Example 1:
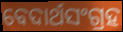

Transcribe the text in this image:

ବେଦାର୍ଥସଂଗ୍ରହ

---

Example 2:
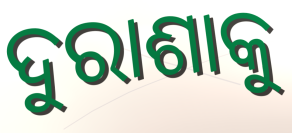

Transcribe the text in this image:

ଦୁରାଶାକୁ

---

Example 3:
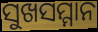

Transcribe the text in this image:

ସୁଖସମ୍ମାନ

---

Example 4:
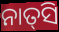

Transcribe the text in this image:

ନାତ୍‌ସି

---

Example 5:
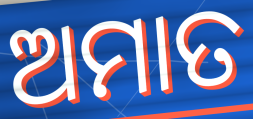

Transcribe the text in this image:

ଅମାତ